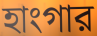
হাংগার